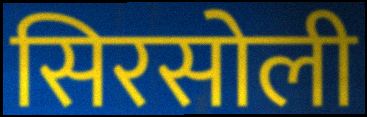
सिरसोली